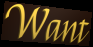
Want